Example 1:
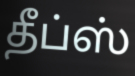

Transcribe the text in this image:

தீப்ஸ்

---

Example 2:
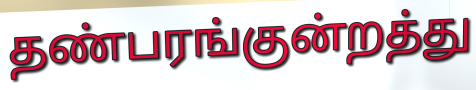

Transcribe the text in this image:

தண்பரங்குன்றத்து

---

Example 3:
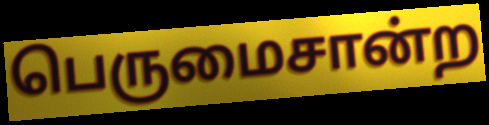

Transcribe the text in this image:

பெருமைசான்ற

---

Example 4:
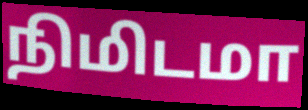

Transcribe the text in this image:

நிமிடமா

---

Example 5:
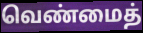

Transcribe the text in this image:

வெண்மைத்